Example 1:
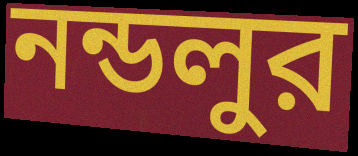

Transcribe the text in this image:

নন্ডলুর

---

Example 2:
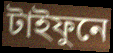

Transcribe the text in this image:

টাইফুনে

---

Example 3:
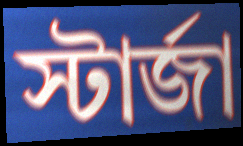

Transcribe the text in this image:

স্টার্জা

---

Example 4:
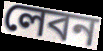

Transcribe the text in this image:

লেবন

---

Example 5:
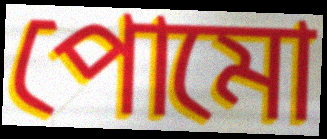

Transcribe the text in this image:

পোমো